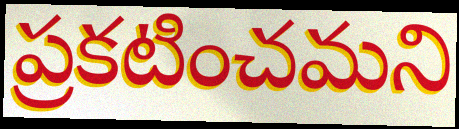
ప్రకటించమని